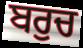
ਬਰੁਚ